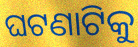
ଘଟଣାଟିକୁ